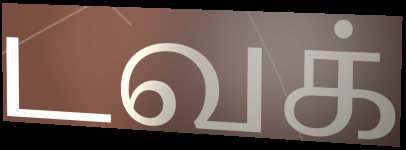
டவக்